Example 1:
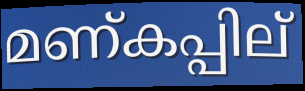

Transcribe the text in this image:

മണ്കപ്പില്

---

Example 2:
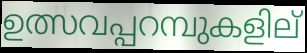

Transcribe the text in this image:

ഉത്സവപ്പറമ്പുകളില്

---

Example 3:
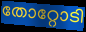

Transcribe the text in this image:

തോറ്റോടി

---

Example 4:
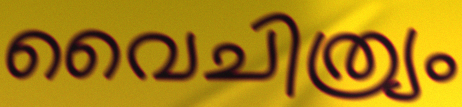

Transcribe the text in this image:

വൈചിത്ര്യം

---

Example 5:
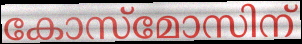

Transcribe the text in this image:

കോസ്മോസിന്